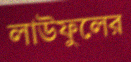
লাউফুলের